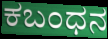
ಕಬಂಧನ